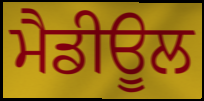
ਮੈਡੀਊਲ